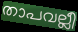
താപവല്ലീ